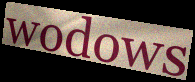
wodows